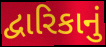
દ્વારિકાનું